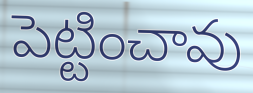
పెట్టించావు